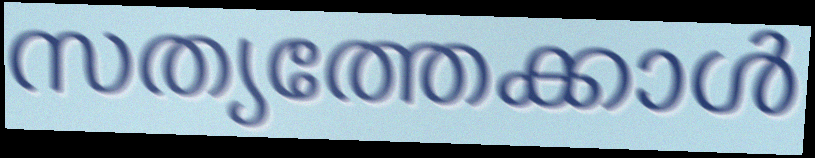
സത്യത്തേക്കാൾ